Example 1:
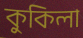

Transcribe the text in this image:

কুকিলা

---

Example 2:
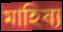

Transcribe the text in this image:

মাহিষ্য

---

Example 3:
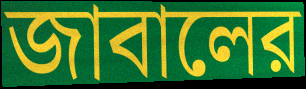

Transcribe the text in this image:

জাবালের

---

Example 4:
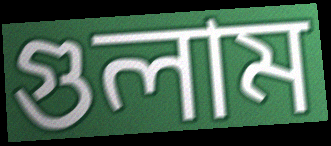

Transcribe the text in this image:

গুলাম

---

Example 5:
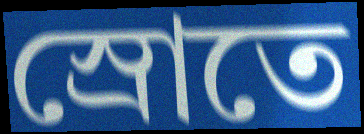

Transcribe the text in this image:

স্রোতে